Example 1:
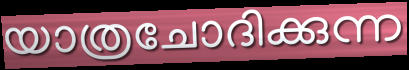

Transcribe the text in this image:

യാത്രചോദിക്കുന്ന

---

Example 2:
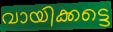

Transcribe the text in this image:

വായിക്കട്ടെ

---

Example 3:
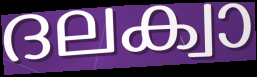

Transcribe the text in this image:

ദലക്വാ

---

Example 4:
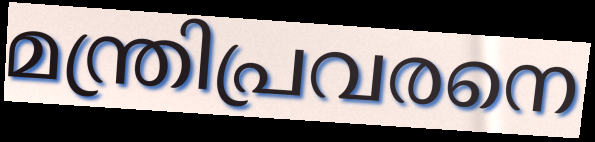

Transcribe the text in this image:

മന്ത്രിപ്രവരനെ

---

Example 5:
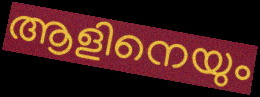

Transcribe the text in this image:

ആളിനെയും